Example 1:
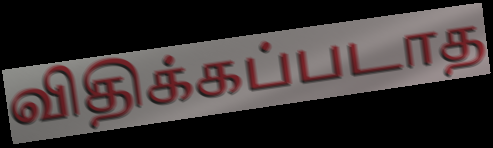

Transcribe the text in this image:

விதிக்கப்படாத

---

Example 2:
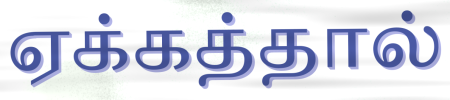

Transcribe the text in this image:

ஏக்கத்தால்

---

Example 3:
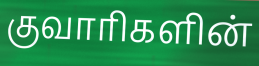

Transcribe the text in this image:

குவாரிகளின்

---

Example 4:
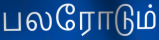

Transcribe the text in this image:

பலரோடும்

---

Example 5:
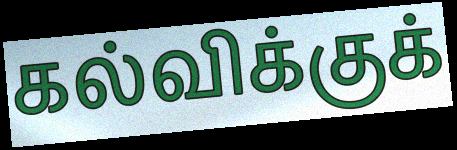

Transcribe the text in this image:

கல்விக்குக்